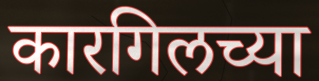
कारगिलच्या